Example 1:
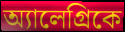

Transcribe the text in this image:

অ্যালেগ্রিকে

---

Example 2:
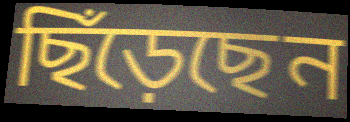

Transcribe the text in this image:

ছিঁড়েছেন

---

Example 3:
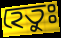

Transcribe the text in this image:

হেতুঃ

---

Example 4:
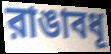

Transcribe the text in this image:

রাঙাবধূ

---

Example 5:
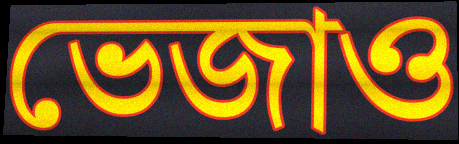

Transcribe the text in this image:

ভেজাও